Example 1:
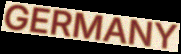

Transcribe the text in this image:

GERMANY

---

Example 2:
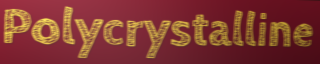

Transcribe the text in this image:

Polycrystalline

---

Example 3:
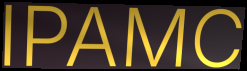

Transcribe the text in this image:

IPAMC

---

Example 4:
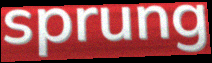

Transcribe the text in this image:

sprung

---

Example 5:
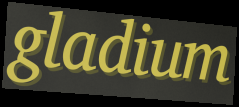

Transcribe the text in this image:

gladium